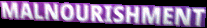
MALNOURISHMENT